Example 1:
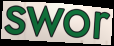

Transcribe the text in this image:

swor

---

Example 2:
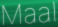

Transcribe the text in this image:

Maal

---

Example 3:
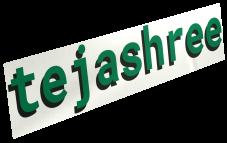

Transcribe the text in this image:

tejashree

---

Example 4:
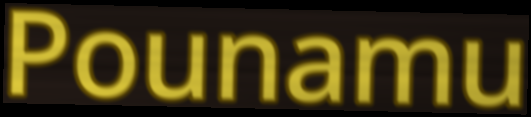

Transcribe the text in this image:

Pounamu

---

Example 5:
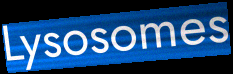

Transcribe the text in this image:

Lysosomes